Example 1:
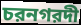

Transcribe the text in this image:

চরনগরদী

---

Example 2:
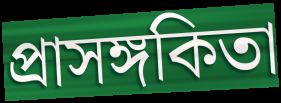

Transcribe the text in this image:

প্রাসঙ্গকিতা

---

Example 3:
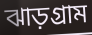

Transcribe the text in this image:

ঝাড়গ্রাম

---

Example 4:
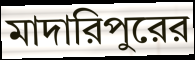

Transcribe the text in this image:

মাদারিপুরের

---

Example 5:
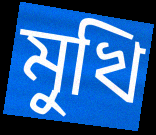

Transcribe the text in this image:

মুখি